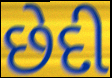
છેદી